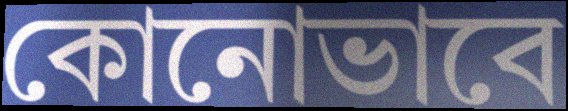
কোনোভাবে